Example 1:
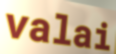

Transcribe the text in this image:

valai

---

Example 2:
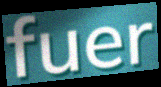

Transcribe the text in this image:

fuer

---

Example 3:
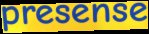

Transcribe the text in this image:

presense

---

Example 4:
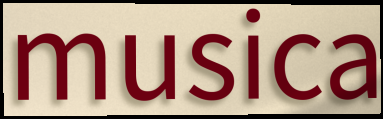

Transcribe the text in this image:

musica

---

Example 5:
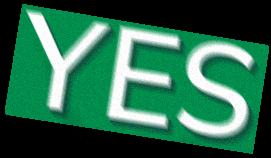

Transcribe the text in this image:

YES